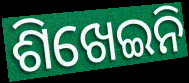
ଶିଖେଇନି